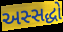
અસ્સદ્ધો